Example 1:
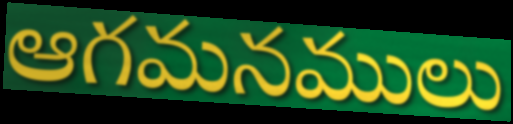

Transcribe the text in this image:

ఆగమనములు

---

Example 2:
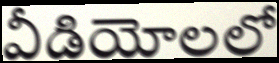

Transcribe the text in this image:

వీడియోలలో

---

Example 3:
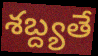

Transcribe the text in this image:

శబ్ద్యతే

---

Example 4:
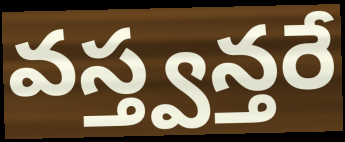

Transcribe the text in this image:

వస్త్వన్తరే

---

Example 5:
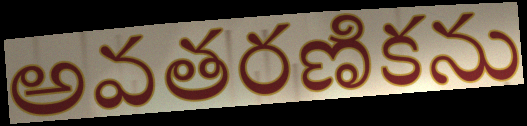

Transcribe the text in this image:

అవతరణికను